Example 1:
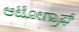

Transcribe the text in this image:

ಆಟೋಗ್ರಾಫ್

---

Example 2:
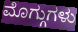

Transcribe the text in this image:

ಮೊಗ್ಗುಗಳು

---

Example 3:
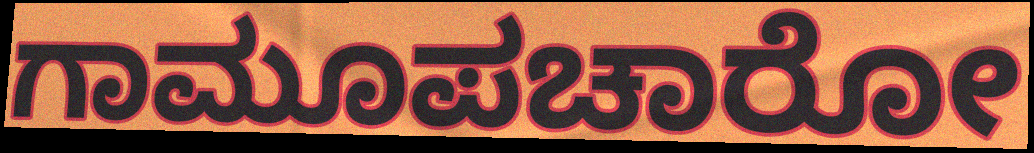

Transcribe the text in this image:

ಗಾಮೂಪಚಾರೋ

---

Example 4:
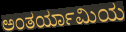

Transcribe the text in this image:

ಅಂತರ್ಯಾಮಿಯ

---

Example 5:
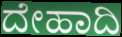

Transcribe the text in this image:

ದೇಹಾದಿ